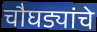
चौघड्यांचे